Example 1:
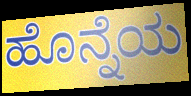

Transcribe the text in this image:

ಹೊನ್ನೆಯ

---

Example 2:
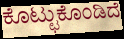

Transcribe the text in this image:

ಕೊಟ್ಟುಕೊಂಡಿದೆ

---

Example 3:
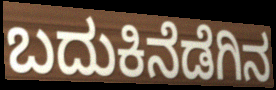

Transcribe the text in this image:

ಬದುಕಿನೆಡೆಗಿನ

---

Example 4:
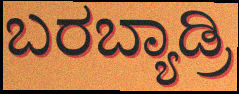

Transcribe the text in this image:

ಬರಬ್ಯಾಡ್ರಿ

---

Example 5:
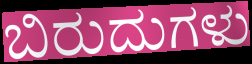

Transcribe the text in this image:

ಬಿರುದುಗಳು